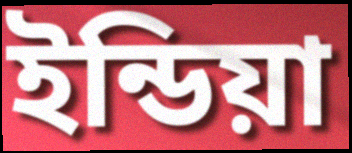
ইন্ডিয়া